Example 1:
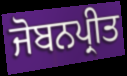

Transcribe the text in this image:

ਜੋਬਨਪ੍ਰੀਤ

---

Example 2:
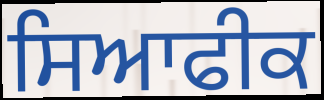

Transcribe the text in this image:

ਸਿਆਫੀਕ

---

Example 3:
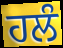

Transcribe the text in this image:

ਹਲੰ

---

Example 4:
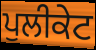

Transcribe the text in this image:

ਪੁਲੀਕੇਟ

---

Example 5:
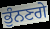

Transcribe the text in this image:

ਭੁੰਨਣਗੇ